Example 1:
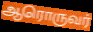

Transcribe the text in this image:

ஆரொருவர்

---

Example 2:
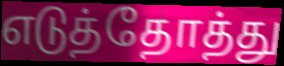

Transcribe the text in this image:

எடுத்தோத்து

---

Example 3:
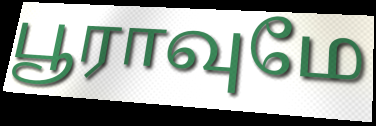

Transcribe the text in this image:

பூராவுமே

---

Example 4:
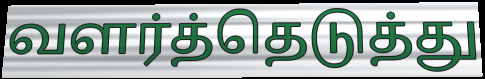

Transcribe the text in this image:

வளர்த்தெடுத்து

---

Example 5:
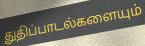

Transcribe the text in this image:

துதிப்பாடல்களையும்